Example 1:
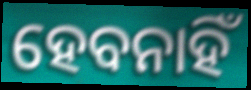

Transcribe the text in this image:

ହେବନାହିଁ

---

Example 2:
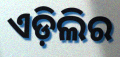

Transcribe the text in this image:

ଏଡ଼ିଲିର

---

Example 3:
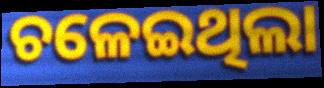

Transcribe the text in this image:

ଚଳେଇଥିଲା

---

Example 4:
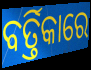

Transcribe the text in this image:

ବର୍ତ୍ତିକାରେ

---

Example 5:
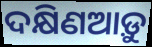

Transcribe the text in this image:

ଦକ୍ଷିଣଆଡ଼ୁ